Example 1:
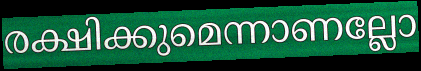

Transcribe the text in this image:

രക്ഷിക്കുമെന്നാണല്ലോ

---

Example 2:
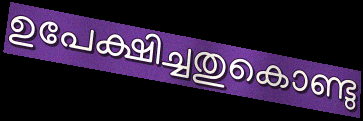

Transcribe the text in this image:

ഉപേക്ഷിച്ചതുകൊണ്ടു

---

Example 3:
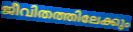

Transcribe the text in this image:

ജീവിതത്തിലേക്കും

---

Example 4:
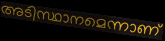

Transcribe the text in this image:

അടിസ്ഥാനമെന്നാണ്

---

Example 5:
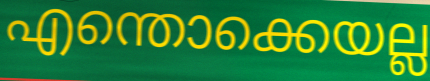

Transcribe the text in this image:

എന്തൊക്കെയല്ല